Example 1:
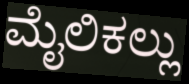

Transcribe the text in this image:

ಮೈಲಿಕಲ್ಲು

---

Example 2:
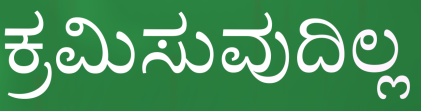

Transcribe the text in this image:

ಕ್ರಮಿಸುವುದಿಲ್ಲ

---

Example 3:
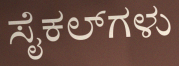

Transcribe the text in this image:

ಸೈಕಲ್‌ಗಳು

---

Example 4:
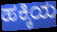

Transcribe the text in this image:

ಹಕ್ಕಿಯ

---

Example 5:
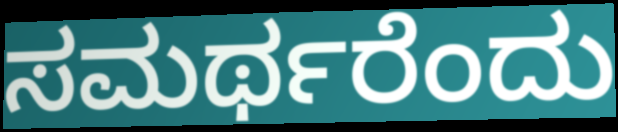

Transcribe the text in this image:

ಸಮರ್ಥರೆಂದು